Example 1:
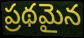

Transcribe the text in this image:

ప్రథమైన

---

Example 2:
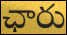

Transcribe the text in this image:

ఛారు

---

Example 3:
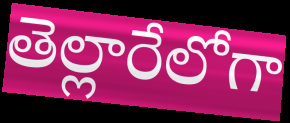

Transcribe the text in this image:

తెల్లారేలోగా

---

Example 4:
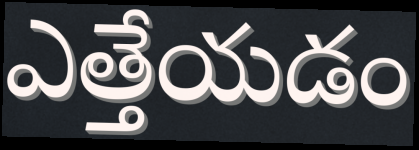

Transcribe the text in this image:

ఎత్తేయడం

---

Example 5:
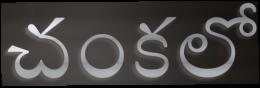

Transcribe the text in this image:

చంకలో